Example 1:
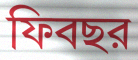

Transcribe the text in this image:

ফিবছর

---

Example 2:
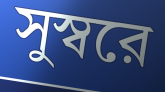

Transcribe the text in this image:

সুস্বরে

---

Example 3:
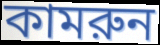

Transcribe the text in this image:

কামরুন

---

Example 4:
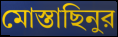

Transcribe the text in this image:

মোস্তাছিনুর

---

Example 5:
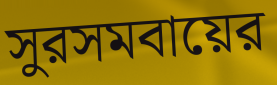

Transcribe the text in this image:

সুরসমবায়ের